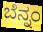
ಬೆನ್ನಂ